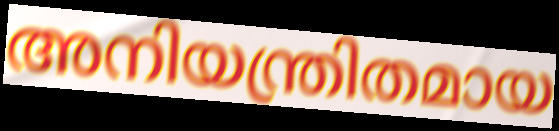
അനിയന്ത്രിതമായ